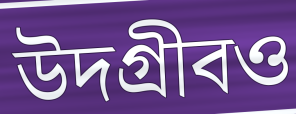
উদগ্রীবও